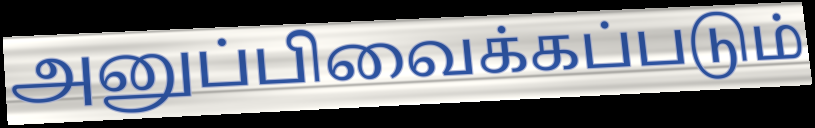
அனுப்பிவைக்கப்படும்